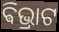
ଵିଭ୍ରାଟ